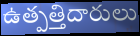
ఉత్పత్తిదారులు